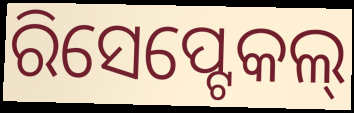
ରିସେପ୍ଟେକଲ୍